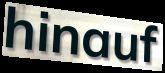
hinauf